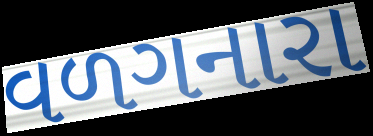
વળગનારા